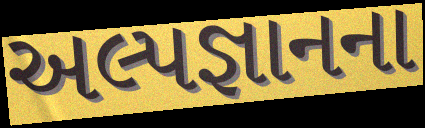
અલ્પજ્ઞાનના